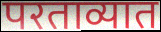
परताव्यात